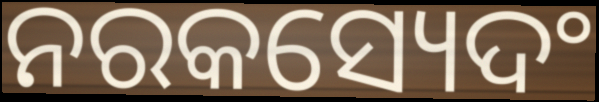
ନରକସ୍ୟେଦଂ